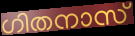
ഗിതനാസ്